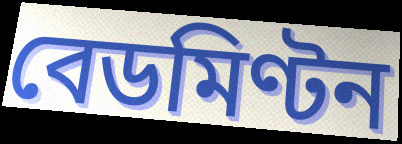
বেডমিণ্টন